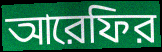
আরেফির